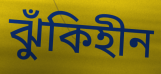
ঝুঁকিহীন